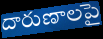
దారుణాలపై